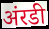
अंरडी